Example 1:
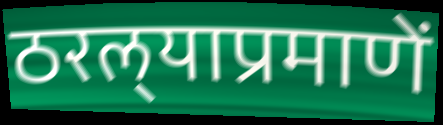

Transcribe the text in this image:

ठरल्याप्रमाणें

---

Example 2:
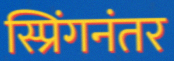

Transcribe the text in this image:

स्प्रिंगनंतर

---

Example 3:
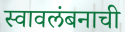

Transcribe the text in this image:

स्वावलंबनाची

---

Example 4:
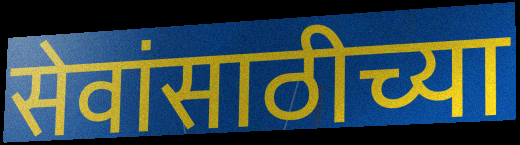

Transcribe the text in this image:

सेवांसाठीच्या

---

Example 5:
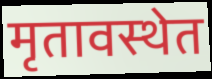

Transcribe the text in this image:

मृतावस्थेत